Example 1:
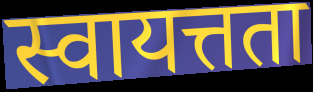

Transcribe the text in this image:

स्वायत्तता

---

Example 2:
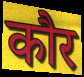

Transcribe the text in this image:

कौर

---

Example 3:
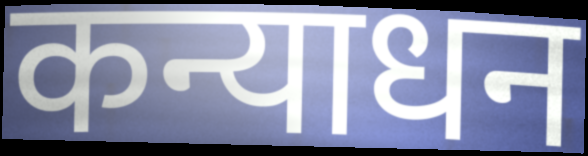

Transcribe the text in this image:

कन्याधन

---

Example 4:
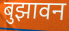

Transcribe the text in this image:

बुझावन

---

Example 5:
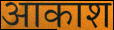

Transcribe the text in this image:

आकाश